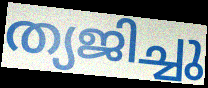
ത്യജിച്ചു